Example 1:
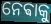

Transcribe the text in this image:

ନେଵାକୁ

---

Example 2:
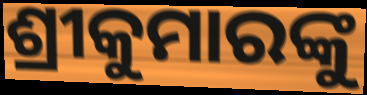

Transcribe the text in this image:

ଶ୍ରୀକୁମାରଙ୍କୁ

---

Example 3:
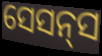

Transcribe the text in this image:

ସେସନ୍‌ସ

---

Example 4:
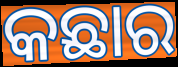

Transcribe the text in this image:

କଛାର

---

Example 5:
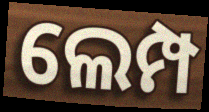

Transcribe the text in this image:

ଲେମ୍ପ